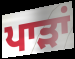
ਪਾੜਾਂ